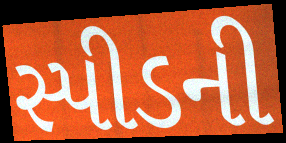
સ્પીડની